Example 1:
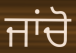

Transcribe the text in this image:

ਜਾਂਚੋ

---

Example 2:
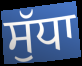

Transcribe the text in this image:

ਸੁੱਧਾ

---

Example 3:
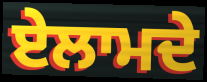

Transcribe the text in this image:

ਏਲਾਮਦੇ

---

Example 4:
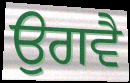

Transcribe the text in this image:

ਉਗਵੈ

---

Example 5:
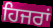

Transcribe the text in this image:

ਹਿਜਰਾਂ